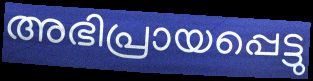
അഭിപ്രായപ്പെട്ടു